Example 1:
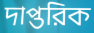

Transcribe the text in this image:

দাপ্তরিক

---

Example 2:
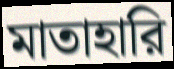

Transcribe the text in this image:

মাতাহারি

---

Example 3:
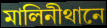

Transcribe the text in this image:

মালিনীথানে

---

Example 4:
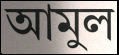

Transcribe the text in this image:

আমুল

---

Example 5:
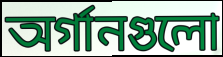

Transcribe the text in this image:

অর্গানগুলো